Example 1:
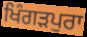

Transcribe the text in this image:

ਖਿੰਗੜਪੁਰਾ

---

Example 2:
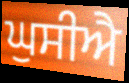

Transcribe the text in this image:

ਘੁਸੀਐ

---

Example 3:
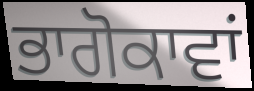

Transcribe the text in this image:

ਭਾਗੋਕਾਵਾਂ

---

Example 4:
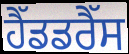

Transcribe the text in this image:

ਹੈੱਡਡਰੈੱਸ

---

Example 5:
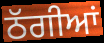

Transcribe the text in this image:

ਠੱਗੀਆਂ